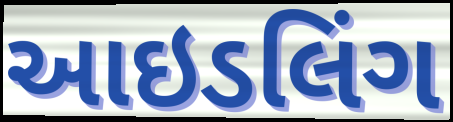
આઇડલિંગ